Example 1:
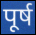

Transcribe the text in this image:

पूर्ष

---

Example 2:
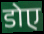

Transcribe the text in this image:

डोए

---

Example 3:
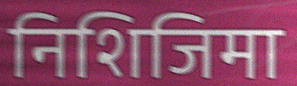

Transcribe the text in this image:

निशिजिमा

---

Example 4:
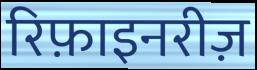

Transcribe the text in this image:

रिफ़ाइनरीज़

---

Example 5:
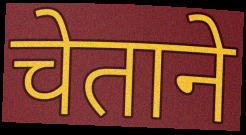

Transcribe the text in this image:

चेताने